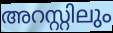
അറസ്റ്റിലും